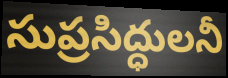
సుప్రసిద్ధులనీ